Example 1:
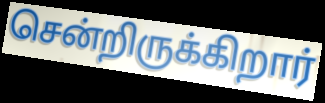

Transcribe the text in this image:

சென்றிருக்கிறார்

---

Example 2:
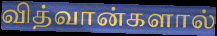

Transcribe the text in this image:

வித்வான்களால்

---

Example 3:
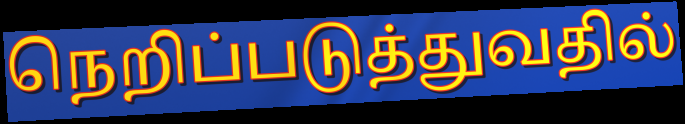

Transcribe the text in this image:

நெறிப்படுத்துவதில்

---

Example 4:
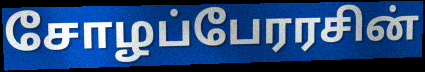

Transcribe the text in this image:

சோழப்பேரரசின்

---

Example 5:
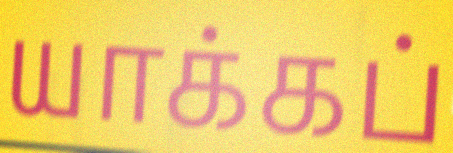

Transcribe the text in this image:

யாக்கப்